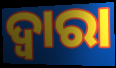
ଦ୍ଵାରା